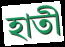
হাতী